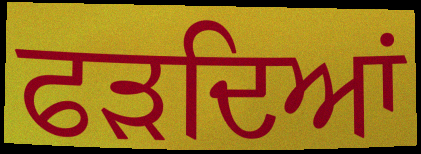
ਫੜਦਿਆਂ